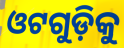
ଓଟଗୁଡ଼ିକୁ